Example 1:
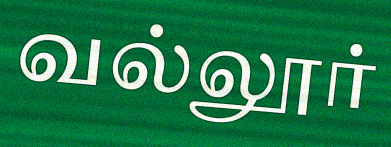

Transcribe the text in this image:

வல்லூர்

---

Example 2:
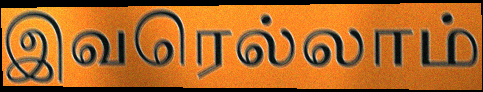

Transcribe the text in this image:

இவரெல்லாம்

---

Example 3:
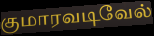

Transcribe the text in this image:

குமாரவடிவேல்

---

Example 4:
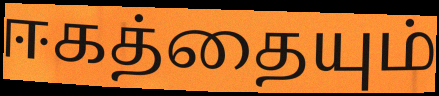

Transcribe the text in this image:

ஈகத்தையும்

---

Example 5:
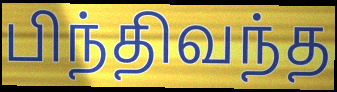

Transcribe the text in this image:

பிந்திவந்த